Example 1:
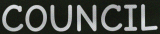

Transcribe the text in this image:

COUNCIL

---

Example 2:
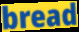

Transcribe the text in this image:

bread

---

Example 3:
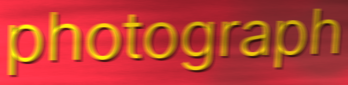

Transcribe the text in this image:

photograph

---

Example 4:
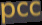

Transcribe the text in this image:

pcc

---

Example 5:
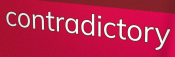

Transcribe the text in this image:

contradictory